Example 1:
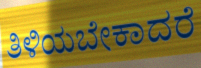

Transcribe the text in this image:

ತಿಳಿಯಬೇಕಾದರೆ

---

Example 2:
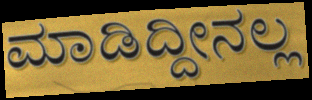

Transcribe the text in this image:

ಮಾಡಿದ್ದೀನಲ್ಲ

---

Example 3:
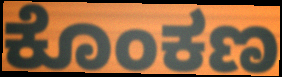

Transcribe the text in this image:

ಕೊಂಕಣ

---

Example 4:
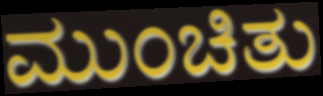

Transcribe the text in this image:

ಮುಂಚಿತು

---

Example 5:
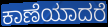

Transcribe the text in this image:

ಕಾಣೆಯಾದರೆ